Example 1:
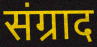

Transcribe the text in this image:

संग्राद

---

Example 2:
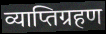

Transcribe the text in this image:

व्याप्तिग्रहण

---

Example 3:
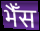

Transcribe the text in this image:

भैँस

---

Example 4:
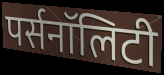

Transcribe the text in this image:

पर्सनॉलिटी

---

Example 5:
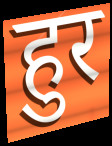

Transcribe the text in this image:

हुर